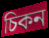
চিকন